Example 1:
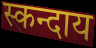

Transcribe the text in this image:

स्कन्दाय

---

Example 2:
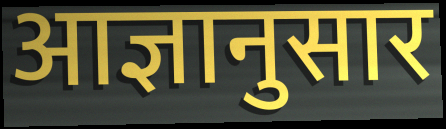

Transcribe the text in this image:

आज्ञानुसार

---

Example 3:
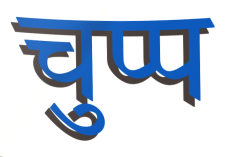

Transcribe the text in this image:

चुप्प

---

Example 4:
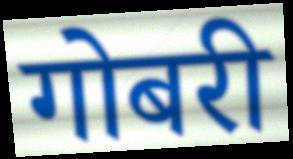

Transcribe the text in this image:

गोबरी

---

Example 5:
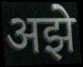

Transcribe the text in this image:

अझे